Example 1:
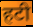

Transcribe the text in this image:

हटी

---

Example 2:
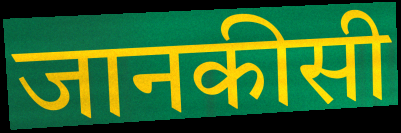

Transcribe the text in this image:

जानकीसी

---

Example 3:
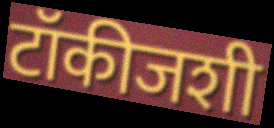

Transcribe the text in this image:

टॉकीजशी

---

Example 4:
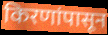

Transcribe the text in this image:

किरणांपासून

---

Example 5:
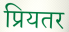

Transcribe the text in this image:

प्रियतर